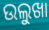
ଉଲୁଖା